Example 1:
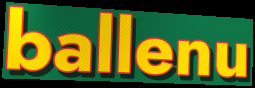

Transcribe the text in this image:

ballenu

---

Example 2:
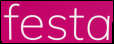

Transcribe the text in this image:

festa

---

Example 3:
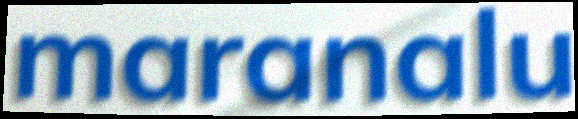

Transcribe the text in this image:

maranalu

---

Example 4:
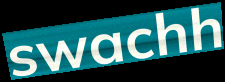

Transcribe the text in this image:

swachh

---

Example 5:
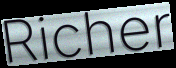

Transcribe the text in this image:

Richer